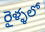
రైళ్ళలో